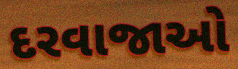
દરવાજાઓ